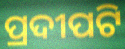
ପ୍ରଦୀପଟି